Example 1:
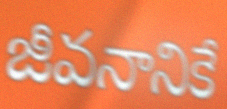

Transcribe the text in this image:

జీవనానికే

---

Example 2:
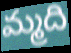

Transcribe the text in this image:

మ్మది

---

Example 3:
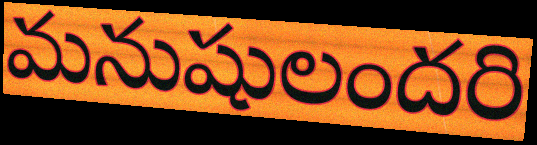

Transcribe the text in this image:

మనుషులందరి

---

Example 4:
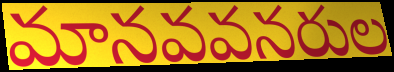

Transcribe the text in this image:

మానవవనరుల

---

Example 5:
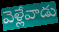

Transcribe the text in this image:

వెళ్లేవాడు